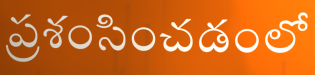
ప్రశంసించడంలో